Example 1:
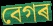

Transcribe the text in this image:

বেগৰ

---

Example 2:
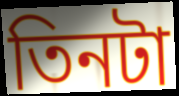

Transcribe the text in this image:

তিনটা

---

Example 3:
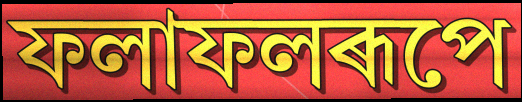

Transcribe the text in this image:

ফলাফলৰূপে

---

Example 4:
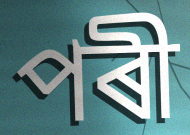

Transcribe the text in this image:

পৰী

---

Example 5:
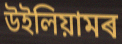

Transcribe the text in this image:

উইলিয়ামৰ